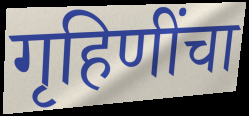
गृहिणींचा